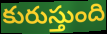
కురుస్తుంది